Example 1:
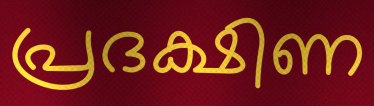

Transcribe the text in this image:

പ്രദക്ഷിണ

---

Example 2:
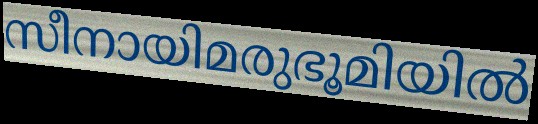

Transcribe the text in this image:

സീനായിമരുഭൂമിയിൽ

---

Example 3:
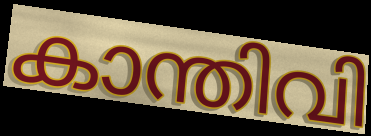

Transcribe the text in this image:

കാന്തിവി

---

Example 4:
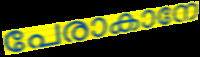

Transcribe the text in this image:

പേരാകാനേ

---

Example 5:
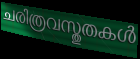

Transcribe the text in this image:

ചരിത്രവസ്തുതകൾ